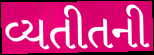
વ્યતીતની